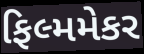
ફિલ્મમેકર